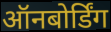
ऑनबोर्डिंग